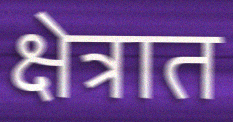
क्षेत्रात